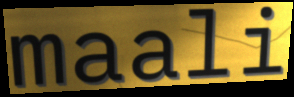
maali